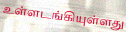
உள்ளடங்கியுள்ளது